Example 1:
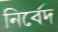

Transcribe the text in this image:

নির্বেদ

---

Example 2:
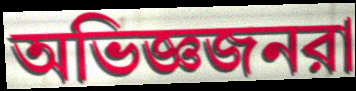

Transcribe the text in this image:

অভিজ্ঞজনরা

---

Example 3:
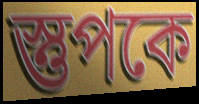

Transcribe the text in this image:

স্তুপকে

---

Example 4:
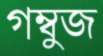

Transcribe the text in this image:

গম্বুজ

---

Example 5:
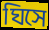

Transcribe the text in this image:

ঘিসে